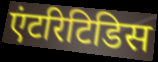
एंटरिटिडिस